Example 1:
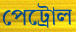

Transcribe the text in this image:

পেট্ৰোল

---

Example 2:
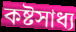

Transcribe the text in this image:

কষ্টসাধ্য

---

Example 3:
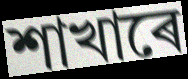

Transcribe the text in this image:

শাখাৰে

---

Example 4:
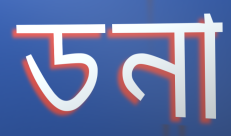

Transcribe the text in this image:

ডনা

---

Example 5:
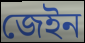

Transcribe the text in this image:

জেইন